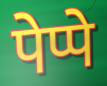
पेप्पे